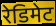
रेडिमेट